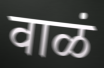
वाळं